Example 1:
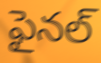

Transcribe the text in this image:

ఫైనల్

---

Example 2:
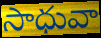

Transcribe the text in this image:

సాధువా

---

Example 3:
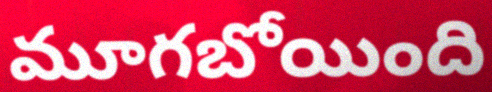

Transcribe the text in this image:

మూగబోయింది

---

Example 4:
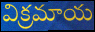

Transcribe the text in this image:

విక్రమాయ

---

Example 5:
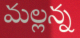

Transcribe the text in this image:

మల్లన్న